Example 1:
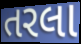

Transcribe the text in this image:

તરલા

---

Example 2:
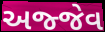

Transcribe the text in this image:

અજ્જેવ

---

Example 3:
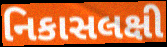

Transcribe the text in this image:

નિકાસલક્ષી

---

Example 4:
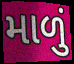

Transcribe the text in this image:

માળું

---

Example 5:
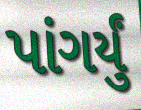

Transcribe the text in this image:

પાંગર્યું